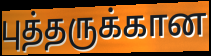
புத்தருக்கான